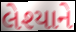
લેશ્યાને